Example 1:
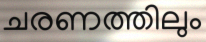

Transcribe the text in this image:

ചരണത്തിലും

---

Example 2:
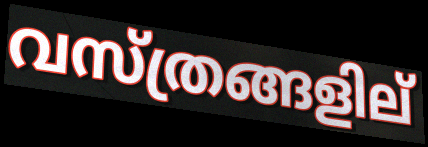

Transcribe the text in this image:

വസ്ത്രങ്ങളില്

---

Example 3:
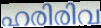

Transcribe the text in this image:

ഹരിരിവ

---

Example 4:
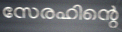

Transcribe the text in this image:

സേരഹിന്റെ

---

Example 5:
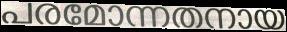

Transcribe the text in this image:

പരമോന്നതനായ